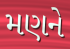
મણને